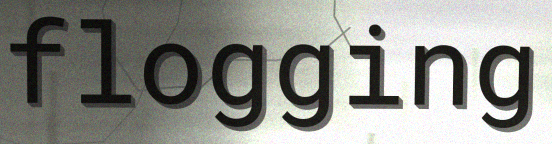
flogging